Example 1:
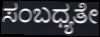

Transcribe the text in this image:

ಸಂಬಧ್ಯತೇ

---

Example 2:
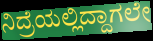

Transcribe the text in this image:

ನಿದ್ರೆಯಲ್ಲಿದ್ದಾಗಲೇ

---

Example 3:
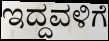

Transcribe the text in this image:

ಇದ್ದವಳಿಗೆ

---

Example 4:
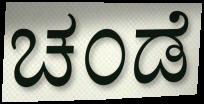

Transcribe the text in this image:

ಚಂಡೆ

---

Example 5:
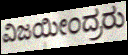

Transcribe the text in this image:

ವಿಜಯೀಂದ್ರರು